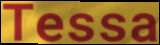
Tessa